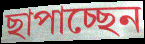
ছাপাচ্ছেন